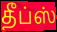
தீப்ஸ்